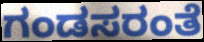
ಗಂಡಸರಂತೆ